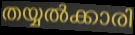
തയ്യൽക്കാരി